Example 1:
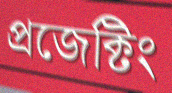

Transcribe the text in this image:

প্রজেক্টিং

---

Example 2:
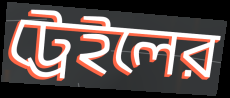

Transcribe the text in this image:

ট্রেইলের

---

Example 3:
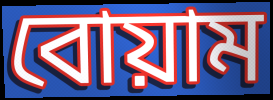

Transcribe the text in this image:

বোয়াম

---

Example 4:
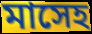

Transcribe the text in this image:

মাসেহ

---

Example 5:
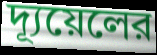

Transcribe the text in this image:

দ্যূয়েলের